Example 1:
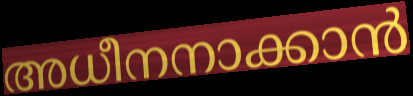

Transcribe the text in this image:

അധീനനാക്കാൻ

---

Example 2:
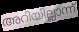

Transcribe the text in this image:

അറിയില്ലാന്ന്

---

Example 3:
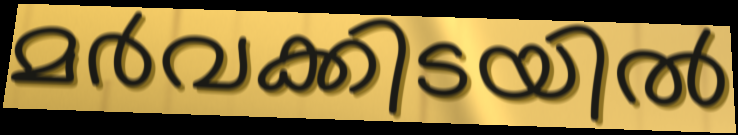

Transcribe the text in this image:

മർവക്കിടയിൽ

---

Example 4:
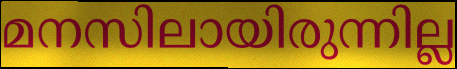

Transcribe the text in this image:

മനസിലായിരുന്നില്ല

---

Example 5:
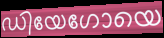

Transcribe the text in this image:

ഡിയേഗോയെ